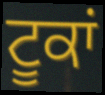
ਟੂਕਾਂ